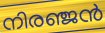
നിരഞ്ജൻ